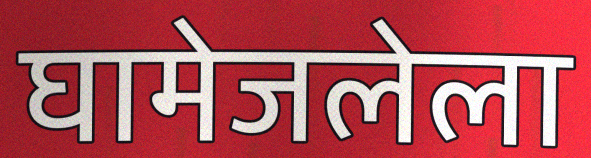
घामेजलेला